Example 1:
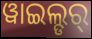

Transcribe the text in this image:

ୱାଇଲ୍ଡର୍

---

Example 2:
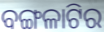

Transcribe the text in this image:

ବଙ୍ଗଳାଟିର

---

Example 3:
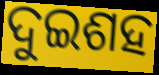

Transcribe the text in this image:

ଦୁଇଶହ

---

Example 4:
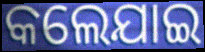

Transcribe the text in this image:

କଲେଯାଇ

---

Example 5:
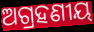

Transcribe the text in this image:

ଅଗ୍ରହଣୀୟ